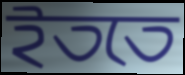
ইততে